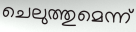
ചെലുത്തുമെന്ന്